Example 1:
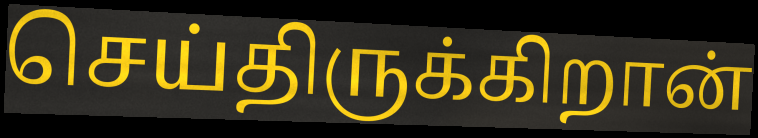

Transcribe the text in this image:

செய்திருக்கிறான்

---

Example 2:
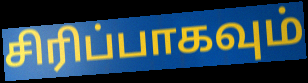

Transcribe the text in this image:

சிரிப்பாகவும்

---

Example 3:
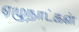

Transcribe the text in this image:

ஏழுநாட்கள்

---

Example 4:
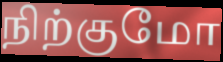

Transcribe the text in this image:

நிற்குமோ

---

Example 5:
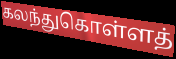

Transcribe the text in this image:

கலந்துகொள்ளத்